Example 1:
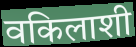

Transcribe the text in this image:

वकिलाशी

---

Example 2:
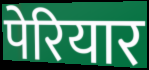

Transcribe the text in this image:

पेरियार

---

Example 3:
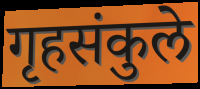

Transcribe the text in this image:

गृहसंकुले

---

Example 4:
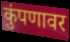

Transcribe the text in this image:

कुंपणावर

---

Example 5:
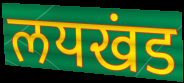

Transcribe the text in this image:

लयखंड